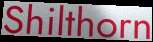
Shilthorn